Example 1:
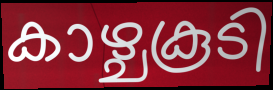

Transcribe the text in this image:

കാഴ്ചകൂടി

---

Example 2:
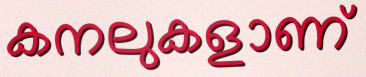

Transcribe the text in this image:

കനലുകളാണ്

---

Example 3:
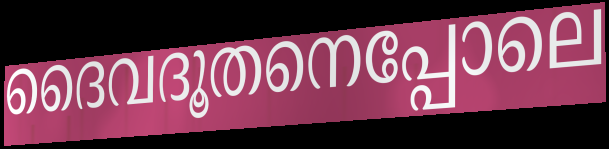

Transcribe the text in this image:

ദൈവദൂതനെപ്പോലെ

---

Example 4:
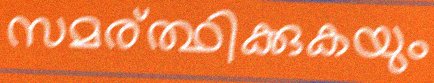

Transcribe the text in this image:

സമര്ത്ഥിക്കുകയും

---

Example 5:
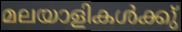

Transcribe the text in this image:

മലയാളികൾക്കു്